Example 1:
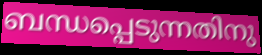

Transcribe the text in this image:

ബന്ധപ്പെടുന്നതിനു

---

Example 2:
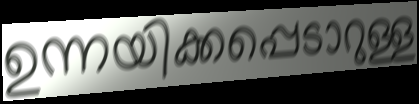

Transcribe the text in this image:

ഉന്നയിക്കപ്പെടാറുള്ള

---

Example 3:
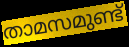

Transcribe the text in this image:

താമസമുണ്ട്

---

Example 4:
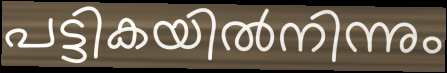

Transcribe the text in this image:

പട്ടികയിൽനിന്നും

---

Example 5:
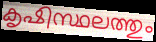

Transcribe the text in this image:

കൃഷിസ്ഥലത്തും